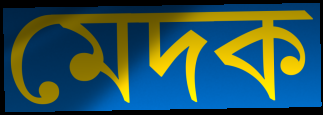
মেদক